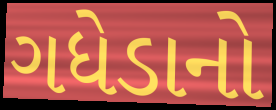
ગધેડાનો